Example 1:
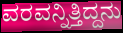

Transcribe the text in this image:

ವರವನ್ನಿತ್ತಿದ್ದನು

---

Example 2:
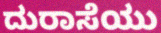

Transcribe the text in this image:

ದುರಾಸೆಯು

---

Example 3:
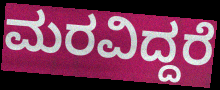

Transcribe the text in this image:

ಮರವಿದ್ದರೆ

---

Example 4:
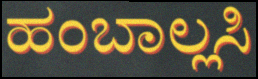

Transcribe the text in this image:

ಹಂಬಾಲ್ಲಸಿ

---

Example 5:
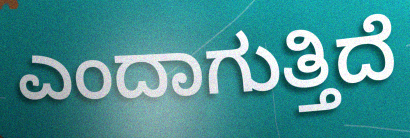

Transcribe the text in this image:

ಎಂದಾಗುತ್ತಿದೆ